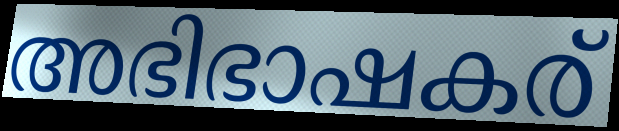
അഭിഭാഷകര്